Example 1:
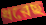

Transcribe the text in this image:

ধরেছ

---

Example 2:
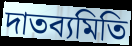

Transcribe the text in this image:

দাতব্যমিতি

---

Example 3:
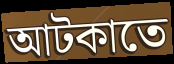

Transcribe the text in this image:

আটকাতে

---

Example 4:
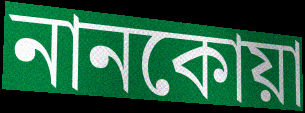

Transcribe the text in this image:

নানকোয়া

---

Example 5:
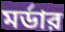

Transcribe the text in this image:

মর্ডার